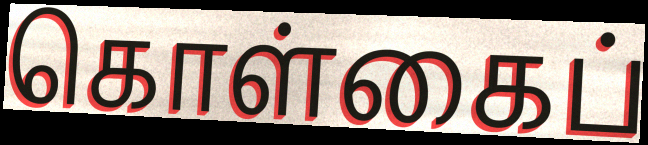
கொள்கைப்